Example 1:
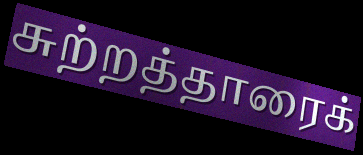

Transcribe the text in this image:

சுற்றத்தாரைக்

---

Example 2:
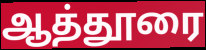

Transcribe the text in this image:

ஆத்தூரை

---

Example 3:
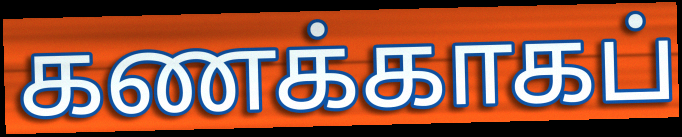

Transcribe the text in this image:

கணக்காகப்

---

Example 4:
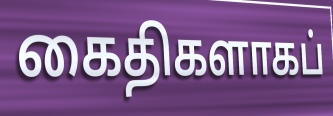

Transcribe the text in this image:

கைதிகளாகப்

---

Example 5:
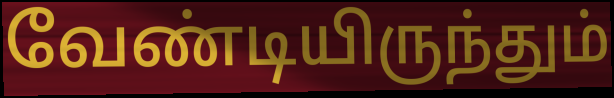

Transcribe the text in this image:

வேண்டியிருந்தும்